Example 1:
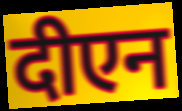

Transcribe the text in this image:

दीएन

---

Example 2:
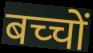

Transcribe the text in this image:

बच्‍चों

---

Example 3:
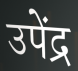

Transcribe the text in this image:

उपेंद्र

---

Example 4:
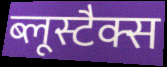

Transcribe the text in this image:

ब्लूस्टैक्स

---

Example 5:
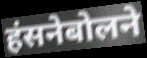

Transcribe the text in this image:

हंसनेबोलने